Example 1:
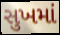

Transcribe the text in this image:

સુખમાં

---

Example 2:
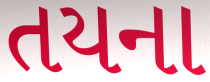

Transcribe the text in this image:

તયના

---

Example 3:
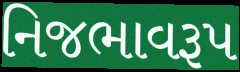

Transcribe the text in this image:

નિજભાવરૂપ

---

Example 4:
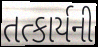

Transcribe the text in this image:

તત્કાર્યની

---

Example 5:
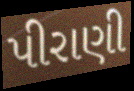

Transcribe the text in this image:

પીરાણી